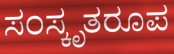
ಸಂಸ್ಕೃತರೂಪ